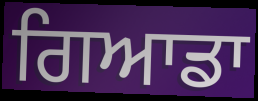
ਗਿਆਡਾ